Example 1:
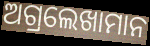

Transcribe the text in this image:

ଅଗ୍ରଲେଖାମାନ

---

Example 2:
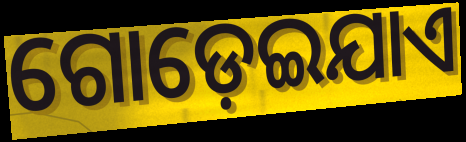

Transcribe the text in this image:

ଗୋଡ଼େଇଯାଏ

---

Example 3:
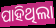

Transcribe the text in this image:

ପାହିଥିଲା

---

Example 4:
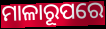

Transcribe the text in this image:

ମାଳାରୂପରେ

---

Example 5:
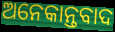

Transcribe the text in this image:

ଅନେକାନ୍ତବାଦ